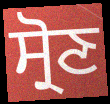
ਸ੍ਰੋਣ